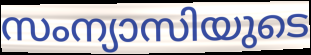
സംന്യാസിയുടെ